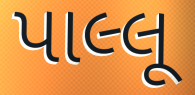
પાલ્લૂ